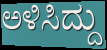
ಅಳಿಸಿದ್ದು